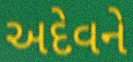
અદેવને